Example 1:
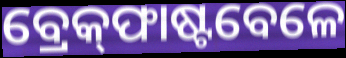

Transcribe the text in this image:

ବ୍ରେକ୍‌ଫାଷ୍ଟବେଳେ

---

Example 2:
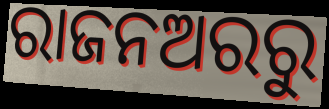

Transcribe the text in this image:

ରାଜନଅରରୁ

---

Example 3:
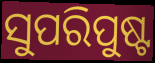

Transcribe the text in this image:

ସୁପରିପୁଷ୍ଟ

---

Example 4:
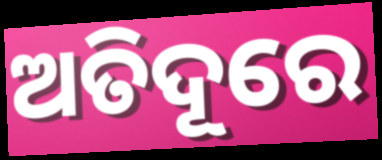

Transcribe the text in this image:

ଅତିଦୂରେ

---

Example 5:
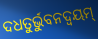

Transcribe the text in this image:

ଦଧତୁର୍ଭୁବନଦ୍ଵୟମ୍